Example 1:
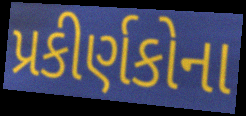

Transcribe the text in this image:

પ્રકીર્ણકોના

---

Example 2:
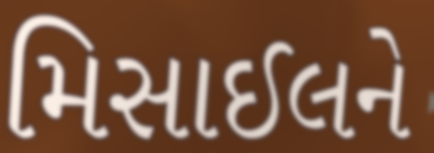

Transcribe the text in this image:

મિસાઈલને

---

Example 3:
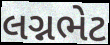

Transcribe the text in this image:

લગ્નભેટ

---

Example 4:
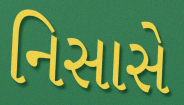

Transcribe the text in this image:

નિસાસે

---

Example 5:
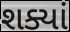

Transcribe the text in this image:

શક્યાં